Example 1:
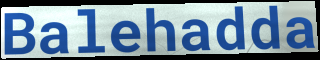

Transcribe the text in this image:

Balehadda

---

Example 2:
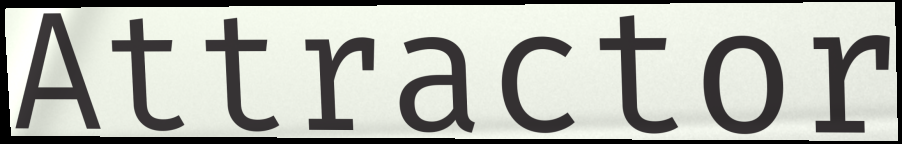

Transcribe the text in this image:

Attractor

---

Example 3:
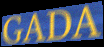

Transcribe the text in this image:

GADA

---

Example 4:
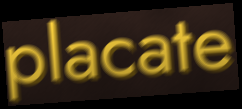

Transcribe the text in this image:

placate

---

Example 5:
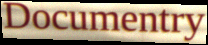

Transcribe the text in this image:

Documentry